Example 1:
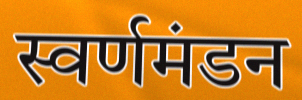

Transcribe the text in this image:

स्वर्णमंडन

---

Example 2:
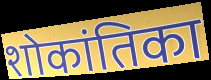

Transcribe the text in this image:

शोकांतिका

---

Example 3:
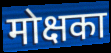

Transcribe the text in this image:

मोक्षका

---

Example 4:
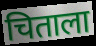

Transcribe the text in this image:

चिताला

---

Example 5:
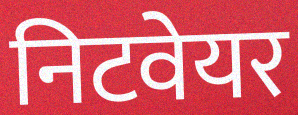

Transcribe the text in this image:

निटवेयर